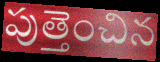
పుత్తెంచిన